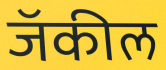
जॅकील